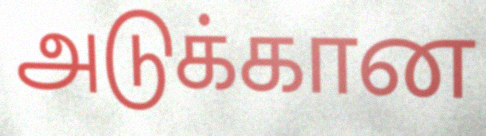
அடுக்கான